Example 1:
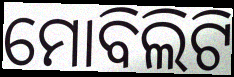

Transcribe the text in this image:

ମୋବିଲିଟି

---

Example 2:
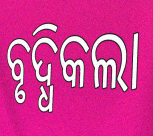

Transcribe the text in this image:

ବୃଦ୍ଧିକଲା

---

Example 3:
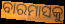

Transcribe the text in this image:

ବାରମାସକୁ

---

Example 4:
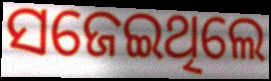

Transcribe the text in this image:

ସଜେଇଥିଲେ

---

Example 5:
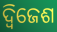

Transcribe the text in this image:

ଦ୍ୱିଜେଶ